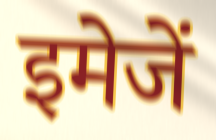
इमेजें